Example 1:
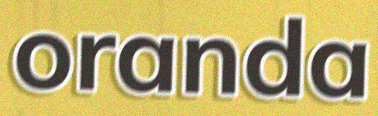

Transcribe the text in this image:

oranda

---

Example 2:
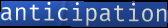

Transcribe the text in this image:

anticipation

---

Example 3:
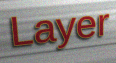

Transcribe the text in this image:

Layer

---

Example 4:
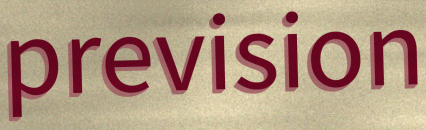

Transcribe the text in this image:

prevision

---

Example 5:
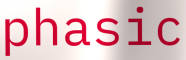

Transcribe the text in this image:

phasic